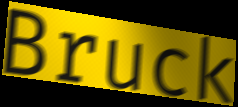
Bruck